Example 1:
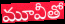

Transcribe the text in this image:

మూవీతో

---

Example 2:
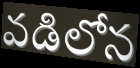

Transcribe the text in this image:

వడిలోన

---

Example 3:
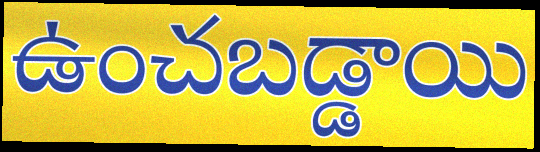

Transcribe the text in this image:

ఉంచబడ్డాయి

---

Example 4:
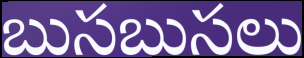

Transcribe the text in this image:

బుసబుసలు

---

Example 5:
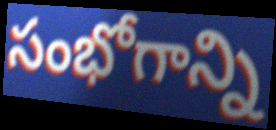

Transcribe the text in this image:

సంభోగాన్ని